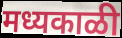
मध्यकाळी